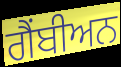
ਗੈਂਬੀਅਨ